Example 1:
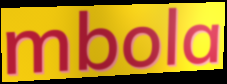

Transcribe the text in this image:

mbola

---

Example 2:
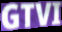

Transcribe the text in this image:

GTVI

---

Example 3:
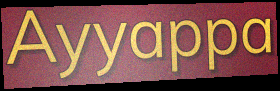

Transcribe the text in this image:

Ayyappa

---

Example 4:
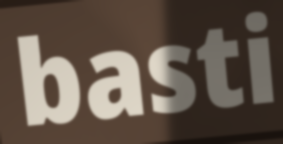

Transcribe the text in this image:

basti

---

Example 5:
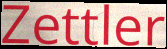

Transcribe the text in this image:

Zettler